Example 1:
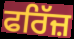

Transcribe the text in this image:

ਫਰਿੱਜ਼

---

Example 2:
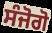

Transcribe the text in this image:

ਸੰਜੋਗੋ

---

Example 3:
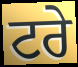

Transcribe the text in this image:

ਟਰੇ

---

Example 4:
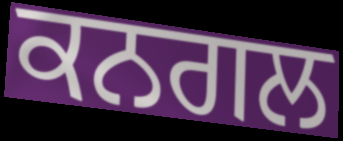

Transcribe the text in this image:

ਕਨਗਲ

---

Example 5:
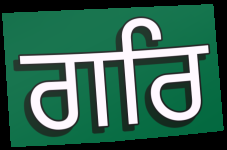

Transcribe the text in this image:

ਗਰਿ